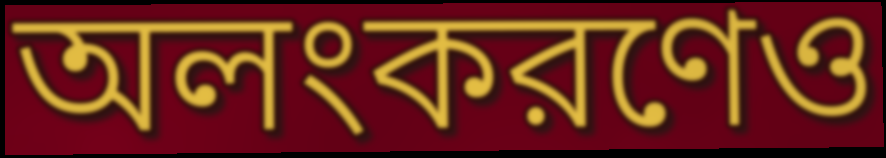
অলংকরণেও